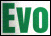
Evo